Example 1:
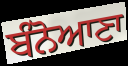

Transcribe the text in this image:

ਬੰਨੋਆਣਾ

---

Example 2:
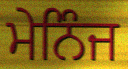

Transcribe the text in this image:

ਮੇਨਿੰਜ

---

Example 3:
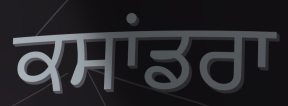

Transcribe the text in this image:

ਕਸਾਂਡਰਾ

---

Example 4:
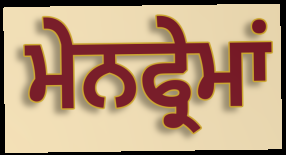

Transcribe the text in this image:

ਮੇਨਫ੍ਰੇਮਾਂ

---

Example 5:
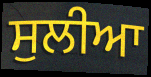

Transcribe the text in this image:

ਸੁਲੀਆ